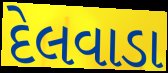
દેલવાડા